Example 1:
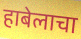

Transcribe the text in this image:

हाबेलाचा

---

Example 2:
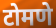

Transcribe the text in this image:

टोमणे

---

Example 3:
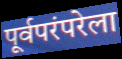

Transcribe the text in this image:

पूर्वपरंपरेला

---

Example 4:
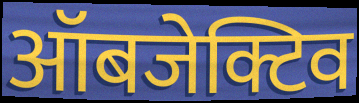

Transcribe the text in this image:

ऑबजेक्टिव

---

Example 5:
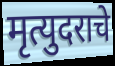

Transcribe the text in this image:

मृत्युदराचे